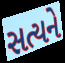
સત્યને